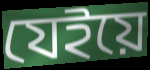
যেইয়ে